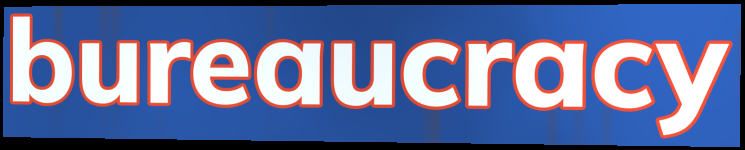
bureaucracy